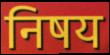
निषय